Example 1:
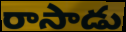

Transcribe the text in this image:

రాసాడు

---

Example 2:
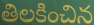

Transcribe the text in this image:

తిలకించిన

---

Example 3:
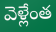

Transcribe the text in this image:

వెళ్లేంత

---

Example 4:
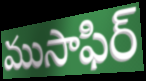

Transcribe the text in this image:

ముసాఫిర్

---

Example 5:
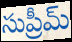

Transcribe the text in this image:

సుప్రీమ్